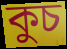
কুচ